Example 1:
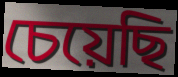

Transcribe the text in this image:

চেয়েছি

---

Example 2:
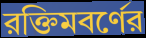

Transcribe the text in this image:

রক্তিমবর্ণের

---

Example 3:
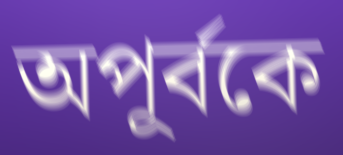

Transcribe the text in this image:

অপূর্বকে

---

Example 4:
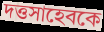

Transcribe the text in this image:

দত্তসাহেবকে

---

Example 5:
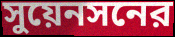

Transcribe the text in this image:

সুয়েনসনের